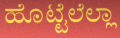
ಹೊಟ್ಟೆಲೆಲ್ಲಾ